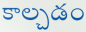
కాల్చడం